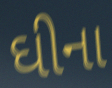
ઘીના